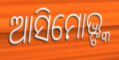
ଆସିମୋଭ୍ଙ୍କ